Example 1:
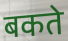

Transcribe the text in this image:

बकते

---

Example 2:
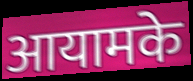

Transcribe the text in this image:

आयामके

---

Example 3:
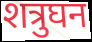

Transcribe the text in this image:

शत्रुघन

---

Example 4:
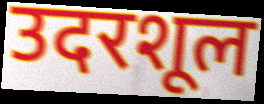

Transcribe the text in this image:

उदरशूल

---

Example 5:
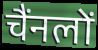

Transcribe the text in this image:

चैंनलों